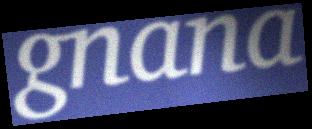
gnana